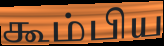
கூம்பிய